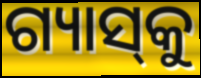
ଗ୍ୟାସ୍‌କୁ